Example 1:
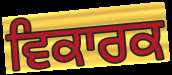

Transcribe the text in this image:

ਵਿਕਾਰਕ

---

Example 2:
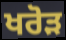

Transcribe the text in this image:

ਖਰੋੜ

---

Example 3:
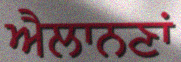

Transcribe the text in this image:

ਐਲਾਨਣਾਂ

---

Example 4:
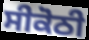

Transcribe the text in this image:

ਸੀਕੋਠੀ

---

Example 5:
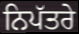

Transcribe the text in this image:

ਨਿਪੱਤਰੇ